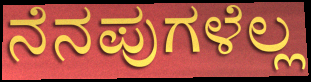
ನೆನಪುಗಳೆಲ್ಲ